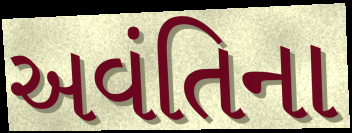
અવંતિના